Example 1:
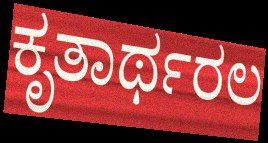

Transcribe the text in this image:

ಕೃತಾರ್ಥರಲ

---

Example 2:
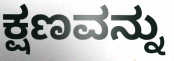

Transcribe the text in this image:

ಕ್ಷಣವನ್ನು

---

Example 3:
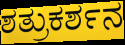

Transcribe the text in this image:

ಶತ್ರುಕರ್ಶನ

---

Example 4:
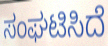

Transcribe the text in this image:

ಸಂಘಟಿಸಿದೆ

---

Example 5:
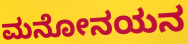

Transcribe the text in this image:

ಮನೋನಯನ